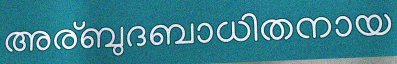
അര്ബുദബാധിതനായ